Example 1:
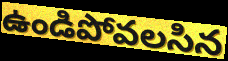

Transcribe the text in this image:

ఉండిపోవలసిన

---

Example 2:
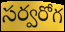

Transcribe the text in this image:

సర్వరోగ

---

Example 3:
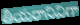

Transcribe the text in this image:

తీయరానివిగా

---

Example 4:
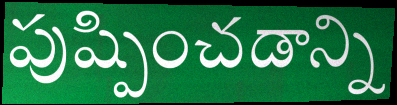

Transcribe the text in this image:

పుష్పించడాన్ని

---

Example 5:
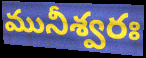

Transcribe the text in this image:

మునీశ్వరః